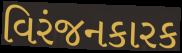
વિરંજનકારક